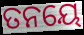
ତନୟେ